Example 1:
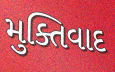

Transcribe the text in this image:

મુક્તિવાદ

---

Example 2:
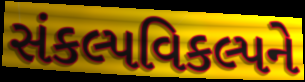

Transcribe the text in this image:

સંકલ્પવિકલ્પને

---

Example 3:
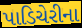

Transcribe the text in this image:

પાડિચેરીના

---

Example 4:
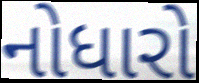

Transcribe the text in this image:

નોધારો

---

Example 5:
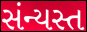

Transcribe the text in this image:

સંન્યસ્ત